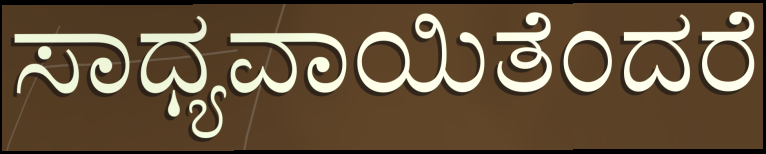
ಸಾಧ್ಯವಾಯಿತೆಂದರೆ